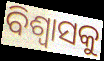
ବିଶ୍ୱାସକୁ